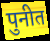
पुनीत